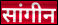
सांगीन